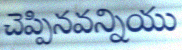
చెప్పినవన్నియు